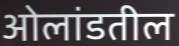
ओलांडतील